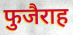
फुजैराह